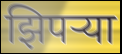
झिपऱ्या